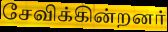
சேவிக்கின்றனர்